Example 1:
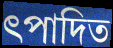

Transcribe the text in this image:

ৎপাদিত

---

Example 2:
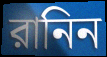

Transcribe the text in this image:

রানিন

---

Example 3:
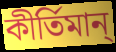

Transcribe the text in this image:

কীর্তিমান্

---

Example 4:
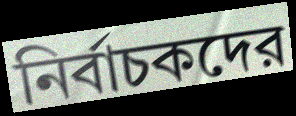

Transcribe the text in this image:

নির্বাচকদের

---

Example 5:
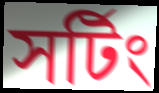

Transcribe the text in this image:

সর্টিং